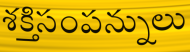
శక్తిసంపన్నులు